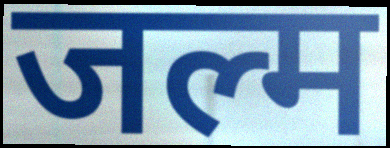
जल्म